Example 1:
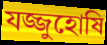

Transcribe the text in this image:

যজ্জুহোষি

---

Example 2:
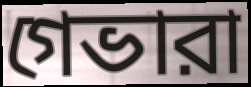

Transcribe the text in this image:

গেভারা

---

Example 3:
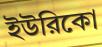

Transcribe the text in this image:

ইউরিকো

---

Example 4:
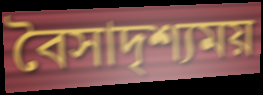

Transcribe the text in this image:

বৈসাদৃশ্যময়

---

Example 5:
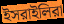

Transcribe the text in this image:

ইসরাইলিরা